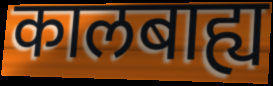
कालबाह्य